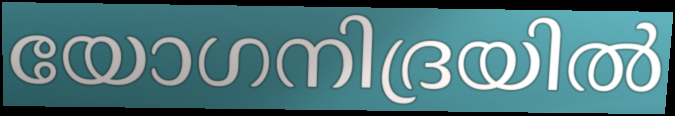
യോഗനിദ്രയിൽ